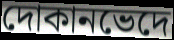
দোকানভেদে